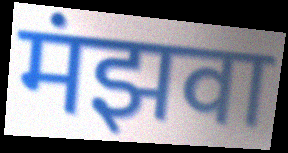
मंझवा